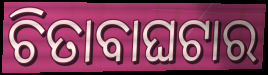
ଚିତାବାଘଟାର